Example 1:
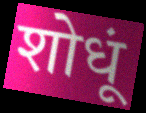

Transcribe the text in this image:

शोधूं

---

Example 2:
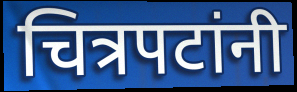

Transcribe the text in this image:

चित्रपटांनी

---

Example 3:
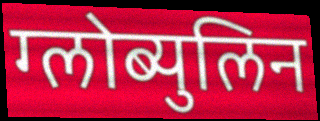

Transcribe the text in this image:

ग्लोब्युलिन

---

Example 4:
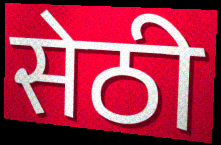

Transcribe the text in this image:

सेठी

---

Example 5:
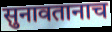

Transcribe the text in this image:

सुनावतानाच